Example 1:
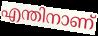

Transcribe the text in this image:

എന്തിനാണ്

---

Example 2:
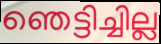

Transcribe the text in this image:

ഞെട്ടിച്ചില്ല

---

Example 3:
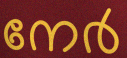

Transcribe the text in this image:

നേർ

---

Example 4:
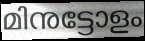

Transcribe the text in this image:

മിനുട്ടോളം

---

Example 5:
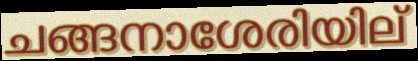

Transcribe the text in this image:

ചങ്ങനാശേരിയില്